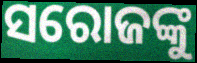
ସରୋଜଙ୍କୁ